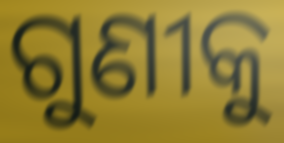
ଗୁଣୀକୁ